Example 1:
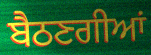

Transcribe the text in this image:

ਬੈਠਣਗੀਆਂ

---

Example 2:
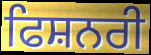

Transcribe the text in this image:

ਫਿਸ਼ਨਰੀ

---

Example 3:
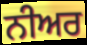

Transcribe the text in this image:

ਨੀਅਰ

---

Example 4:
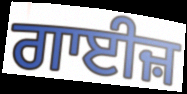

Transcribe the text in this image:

ਗਾਈਜ਼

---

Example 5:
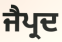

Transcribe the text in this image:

ਜੈਪ੍ਰਦ